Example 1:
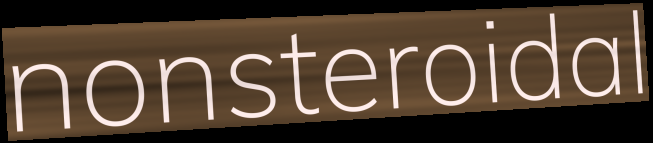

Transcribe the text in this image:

nonsteroidal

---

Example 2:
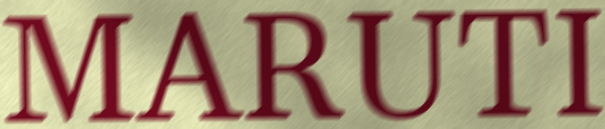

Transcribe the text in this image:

MARUTI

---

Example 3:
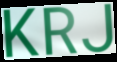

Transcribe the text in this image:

KRJ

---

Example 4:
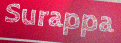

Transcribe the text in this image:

Surappa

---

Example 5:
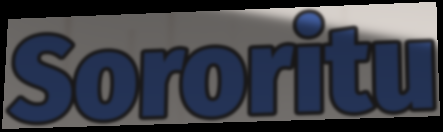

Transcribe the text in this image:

Sororitu